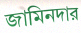
জামিনদার